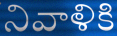
నివాళికి